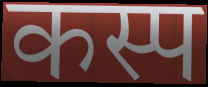
कस्प